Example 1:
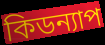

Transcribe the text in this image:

কিডন্যাপ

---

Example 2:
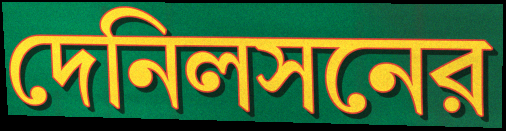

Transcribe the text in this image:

দেনিলসনের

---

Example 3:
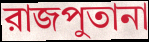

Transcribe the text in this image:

রাজপুতানা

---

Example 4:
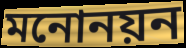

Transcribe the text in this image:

মনোনয়ন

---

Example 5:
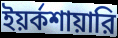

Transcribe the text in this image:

ইয়র্কশায়ারি